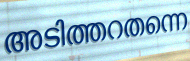
അടിത്തറതന്നെ